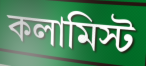
কলামিস্ট